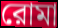
রোমা